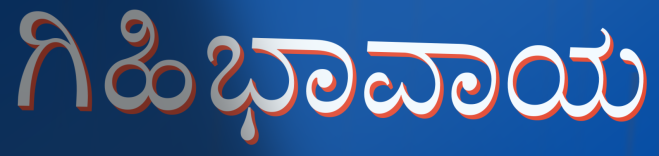
ಗಿಹಿಭಾವಾಯ